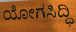
ಯೋಗಸಿದ್ಧಿ